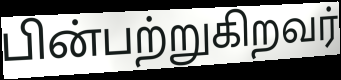
பின்பற்றுகிறவர்